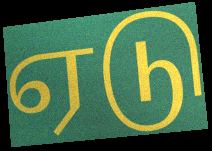
ஏடு